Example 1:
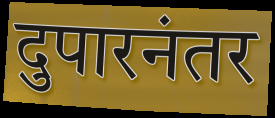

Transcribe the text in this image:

दुपारनंतर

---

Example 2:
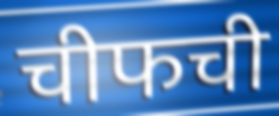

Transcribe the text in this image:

चीफची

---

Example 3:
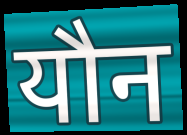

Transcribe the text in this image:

यौन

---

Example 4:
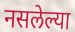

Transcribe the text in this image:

नसलेल्या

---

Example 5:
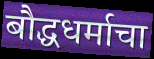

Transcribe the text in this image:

बौद्धधर्माचा